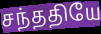
சந்ததியே